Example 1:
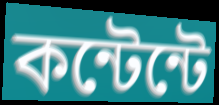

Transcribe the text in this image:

কন্টেন্টে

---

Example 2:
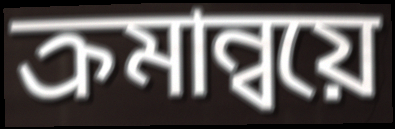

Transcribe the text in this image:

ক্রমান্বয়ে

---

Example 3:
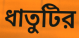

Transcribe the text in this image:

ধাতুটির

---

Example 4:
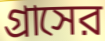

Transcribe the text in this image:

গ্রাসের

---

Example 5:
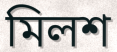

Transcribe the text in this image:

মিলশ